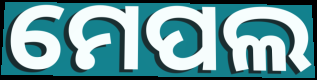
ମେପଲ